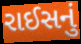
રાઈસનું